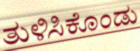
ತುಳಿಸಿಕೊಂಡು